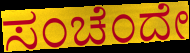
ಸಂಚೆಂದೇ